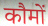
कौमों